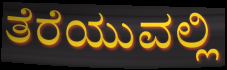
ತೆರೆಯುವಲ್ಲಿ